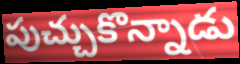
పుచ్చుకొన్నాడు